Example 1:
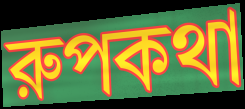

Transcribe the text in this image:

রুপকথা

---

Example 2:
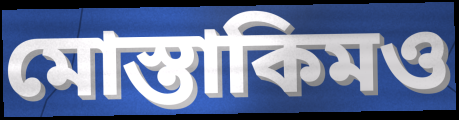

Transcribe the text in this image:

মোস্তাকিমও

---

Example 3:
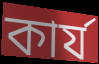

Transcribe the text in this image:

কার্য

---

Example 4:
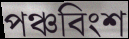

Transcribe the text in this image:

পঞ্চবিংশ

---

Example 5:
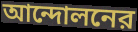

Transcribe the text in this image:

আন্দোলনের